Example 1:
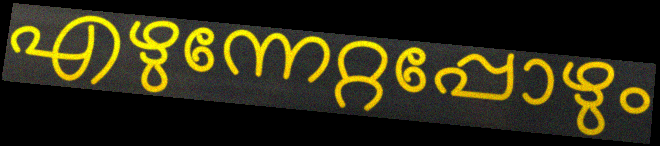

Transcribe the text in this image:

എഴുന്നേറ്റപ്പോഴും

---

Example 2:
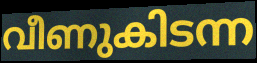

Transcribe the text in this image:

വീണുകിടന്ന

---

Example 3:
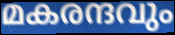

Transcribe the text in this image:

മകരന്ദവും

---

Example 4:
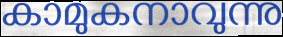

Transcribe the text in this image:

കാമുകനാവുന്നു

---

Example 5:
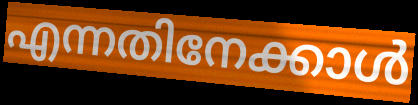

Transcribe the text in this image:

എന്നതിനേക്കാൾ